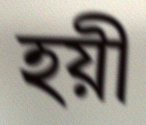
হয়ী